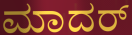
ಮಾದರ್